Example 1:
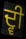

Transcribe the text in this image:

ਦ੍ਵੀ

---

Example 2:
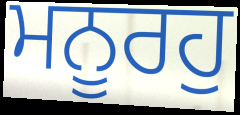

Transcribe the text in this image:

ਮਨੂਰਹੁ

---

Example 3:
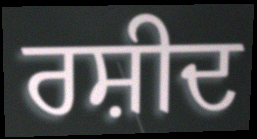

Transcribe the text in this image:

ਰਸ਼ੀਦ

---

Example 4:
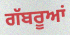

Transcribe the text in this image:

ਗੱਬਰੂਆਂ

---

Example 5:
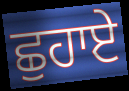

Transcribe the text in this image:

ਛੁਹਾਏ